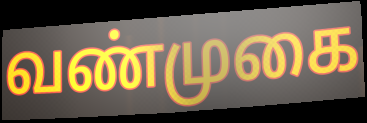
வண்முகை